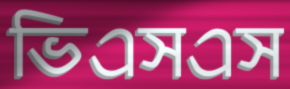
ভিএসএস